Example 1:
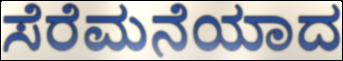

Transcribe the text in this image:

ಸೆರೆಮನೆಯಾದ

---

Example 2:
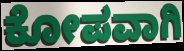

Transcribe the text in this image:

ಕೋಪವಾಗಿ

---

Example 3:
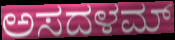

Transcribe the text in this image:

ಅಸದಳಮ್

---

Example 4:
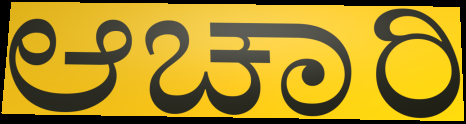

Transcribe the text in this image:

ಆಚಾರಿ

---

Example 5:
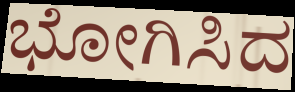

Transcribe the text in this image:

ಭೋಗಿಸಿದ